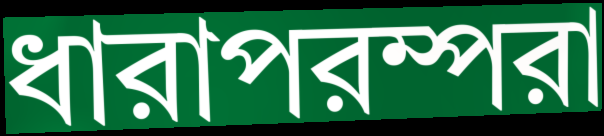
ধারাপরম্পরা